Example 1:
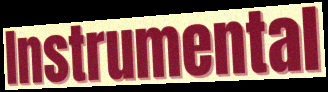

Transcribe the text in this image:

Instrumental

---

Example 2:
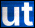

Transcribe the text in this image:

ut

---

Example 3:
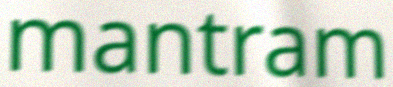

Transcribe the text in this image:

mantram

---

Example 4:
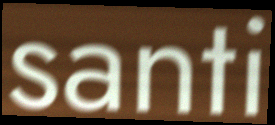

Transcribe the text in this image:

santi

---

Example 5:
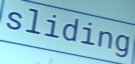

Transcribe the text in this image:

sliding